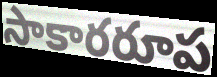
సాకారరూప